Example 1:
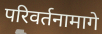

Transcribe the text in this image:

परिवर्तनामागे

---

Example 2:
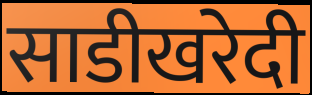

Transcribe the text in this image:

साडीखरेदी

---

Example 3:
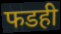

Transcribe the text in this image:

फडही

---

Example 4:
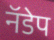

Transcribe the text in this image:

नॅडेप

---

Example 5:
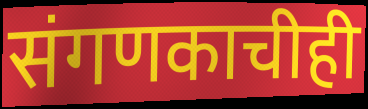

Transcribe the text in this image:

संगणकाचीही